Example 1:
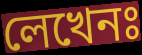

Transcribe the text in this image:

লেখেনঃ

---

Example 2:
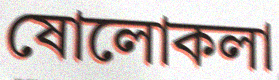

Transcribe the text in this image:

ষোলোকলা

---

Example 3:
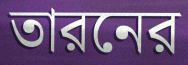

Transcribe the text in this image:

তারনের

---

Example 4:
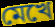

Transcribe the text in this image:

মেখে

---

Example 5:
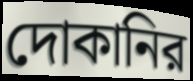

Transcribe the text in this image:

দোকানির